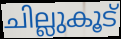
ചില്ലുകൂട്